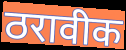
ठरावीक